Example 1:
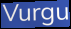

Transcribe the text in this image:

Vurgu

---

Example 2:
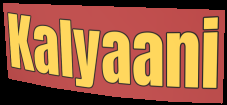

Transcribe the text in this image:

Kalyaani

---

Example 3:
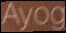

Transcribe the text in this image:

Ayog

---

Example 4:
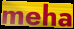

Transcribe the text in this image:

meha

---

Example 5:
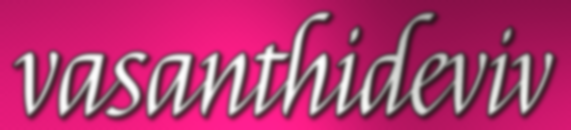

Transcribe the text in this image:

vasanthideviv